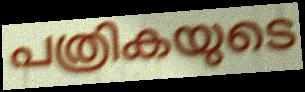
പത്രികയുടെ